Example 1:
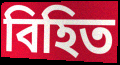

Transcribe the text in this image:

বিহিত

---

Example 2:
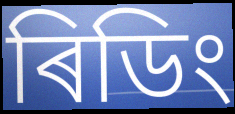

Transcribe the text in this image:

ৰিডিং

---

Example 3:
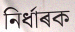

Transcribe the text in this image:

নিৰ্ধাৰক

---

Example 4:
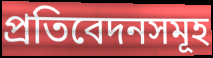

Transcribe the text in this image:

প্ৰতিবেদনসমূহ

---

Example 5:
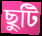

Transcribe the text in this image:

ছুটি